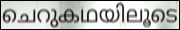
ചെറുകഥയിലൂടെ